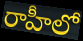
రాహీలో